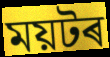
ময়টৰ